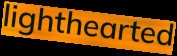
lighthearted